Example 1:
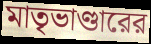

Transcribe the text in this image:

মাতৃভাণ্ডারের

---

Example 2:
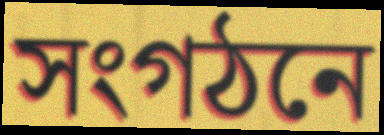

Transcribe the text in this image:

সংগঠনে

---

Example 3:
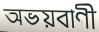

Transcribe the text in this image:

অভয়বাণী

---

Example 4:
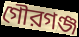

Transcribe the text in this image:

গৌরগঞ্জ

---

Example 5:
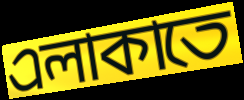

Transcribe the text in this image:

এলাকাতে